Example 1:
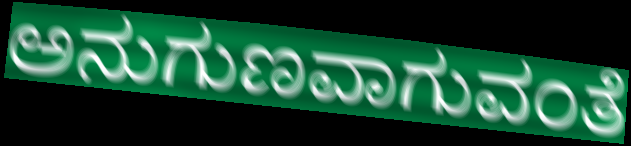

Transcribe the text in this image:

ಅನುಗುಣವಾಗುವಂತೆ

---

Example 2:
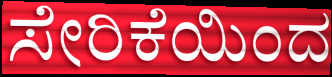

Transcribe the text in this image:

ಸೇರಿಕೆಯಿಂದ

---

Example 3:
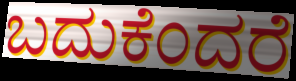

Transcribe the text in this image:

ಬದುಕೆಂದರೆ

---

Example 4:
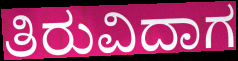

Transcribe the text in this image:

ತಿರುವಿದಾಗ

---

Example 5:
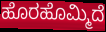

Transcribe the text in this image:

ಹೊರಹೊಮ್ಮಿದೆ